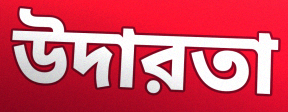
উদারতা